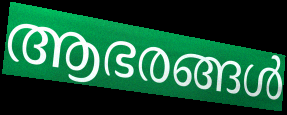
ആഭരങ്ങൾ